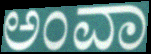
ಅಂವಾ